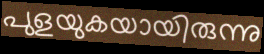
പുളയുകയായിരുന്നു